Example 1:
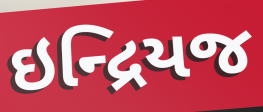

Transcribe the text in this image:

ઇન્દ્રિયજ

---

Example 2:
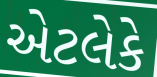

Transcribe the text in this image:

એટલેકે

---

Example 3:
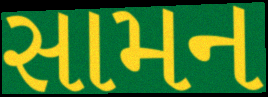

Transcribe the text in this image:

સામન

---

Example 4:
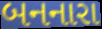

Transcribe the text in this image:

બનનારા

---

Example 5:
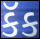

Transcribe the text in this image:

કૅક